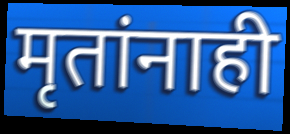
मृतांनाही